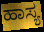
ಹಾಸ್ಯ